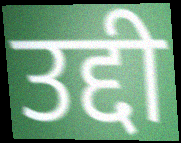
उद्दी